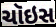
ચૉઇસ